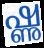
ഷ്ണു